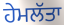
ਹੇਮਲੱਤਾ